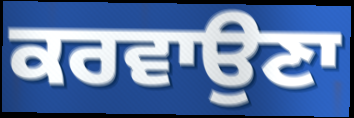
ਕਰਵਾਉਣਾ